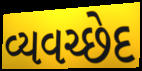
વ્યવચ્છેદ